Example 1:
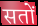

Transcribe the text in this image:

सतों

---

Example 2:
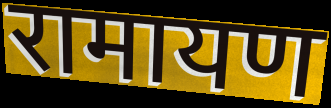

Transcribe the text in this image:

रामायण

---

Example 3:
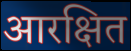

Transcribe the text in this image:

आरक्षित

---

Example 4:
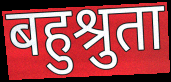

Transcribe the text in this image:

बहुश्रुता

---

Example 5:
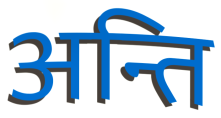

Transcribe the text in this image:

अन्ति